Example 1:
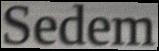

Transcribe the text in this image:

Sedem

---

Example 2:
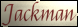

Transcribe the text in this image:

Jackman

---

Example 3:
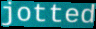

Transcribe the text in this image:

jotted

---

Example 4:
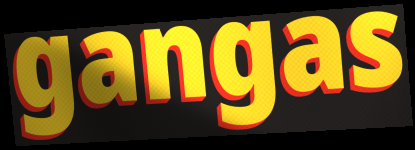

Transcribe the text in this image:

gangas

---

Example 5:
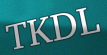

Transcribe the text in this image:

TKDL